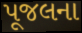
પૂજલના